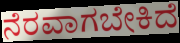
ನೆರವಾಗಬೇಕಿದೆ